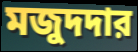
মজুদদার